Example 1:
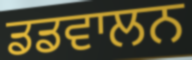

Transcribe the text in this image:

ਡਡਵਾਲਨ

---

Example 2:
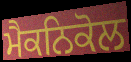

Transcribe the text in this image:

ਮੈਕਨਿਕੋਲ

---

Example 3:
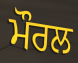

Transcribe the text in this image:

ਮੌਰਲ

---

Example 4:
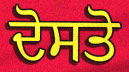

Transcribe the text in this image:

ਦੋਸਤੋ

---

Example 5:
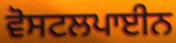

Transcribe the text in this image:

ਵੋਸਟਲਪਾਈਨ